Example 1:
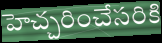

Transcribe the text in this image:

హెచ్చరించేసరికి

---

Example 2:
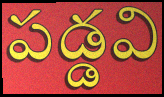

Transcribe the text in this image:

పడ్డవి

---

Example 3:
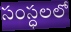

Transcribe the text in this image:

సంస్ధలలో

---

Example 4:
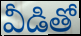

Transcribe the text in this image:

వీడితో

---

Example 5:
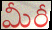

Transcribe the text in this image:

మీరీ